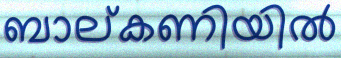
ബാല്കണിയിൽ